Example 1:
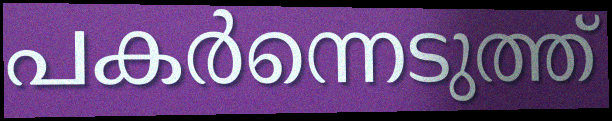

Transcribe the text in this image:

പകർന്നെടുത്ത്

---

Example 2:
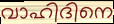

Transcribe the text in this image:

വാഹിദിനെ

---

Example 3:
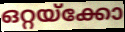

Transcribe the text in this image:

ഒറ്റയ്ക്കോ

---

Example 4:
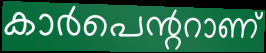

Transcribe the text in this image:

കാർപെന്ററാണ്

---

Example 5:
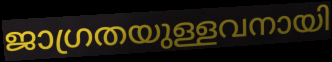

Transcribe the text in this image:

ജാഗ്രതയുള്ളവനായി